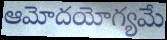
ఆమోదయోగ్యమే